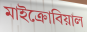
মাইক্রোবিয়াল